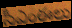
సీఎంఈలు